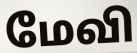
மேவி